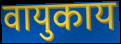
वायुकाय